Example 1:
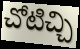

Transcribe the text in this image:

చోటిచ్చి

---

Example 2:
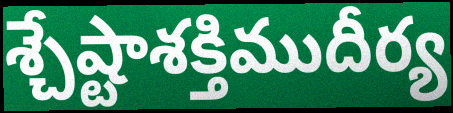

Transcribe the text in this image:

శ్చేష్టాశక్తిముదీర్య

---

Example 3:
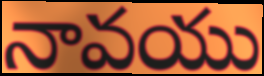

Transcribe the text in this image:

నావయు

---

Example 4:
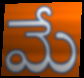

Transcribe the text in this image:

మే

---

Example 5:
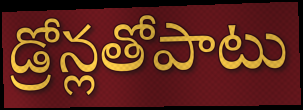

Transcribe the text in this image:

డ్రోన్లతోపాటు